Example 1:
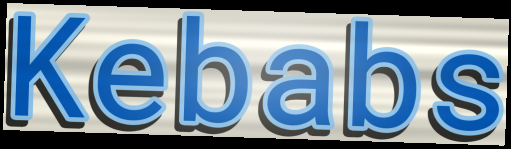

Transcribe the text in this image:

Kebabs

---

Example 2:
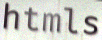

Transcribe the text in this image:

htmls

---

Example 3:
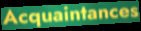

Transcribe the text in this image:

Acquaintances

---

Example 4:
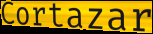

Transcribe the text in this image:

Cortazar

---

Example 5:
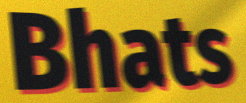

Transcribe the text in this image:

Bhats